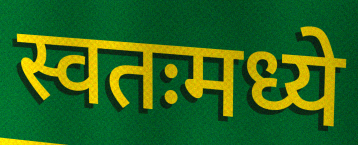
स्वतःमध्ये